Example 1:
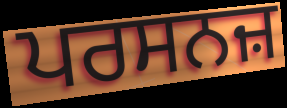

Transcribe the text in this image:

ਪਰਸਨਜ਼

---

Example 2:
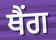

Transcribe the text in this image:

ਥੈਂਗ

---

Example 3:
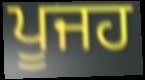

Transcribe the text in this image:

ਪੂਜਹ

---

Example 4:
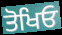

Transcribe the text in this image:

ਤੋਖਿਓ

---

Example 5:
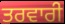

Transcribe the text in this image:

ਤਰਵਾਰੀ